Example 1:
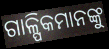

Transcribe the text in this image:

ଗାଳ୍ପିକମାନଙ୍କୁ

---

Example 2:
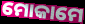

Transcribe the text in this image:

ମୋକାମେ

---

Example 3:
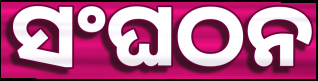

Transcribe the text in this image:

ସଂଘଠନ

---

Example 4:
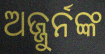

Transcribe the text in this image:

ଅଜ୍ଜୁର୍ନଙ୍କ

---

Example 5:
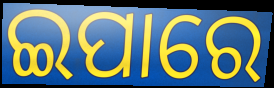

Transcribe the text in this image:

ଇପାରେ